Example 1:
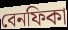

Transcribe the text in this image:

বেনফিকা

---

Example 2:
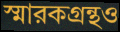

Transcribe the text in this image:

স্মারকগ্রন্থও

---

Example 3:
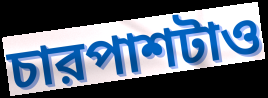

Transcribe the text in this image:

চারপাশটাও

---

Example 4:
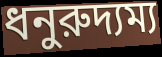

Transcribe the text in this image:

ধনুরুদ্যম্য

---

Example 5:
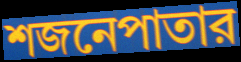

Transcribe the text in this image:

শজনেপাতার